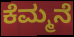
ಕೆಮ್ಮನೆ